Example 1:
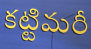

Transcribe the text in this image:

కట్టిమరీ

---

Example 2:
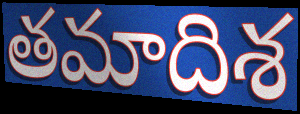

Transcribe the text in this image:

తమాదిశ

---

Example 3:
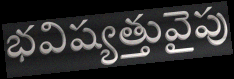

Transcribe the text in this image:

భవిష్యత్తువైపు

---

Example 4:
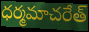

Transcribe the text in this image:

ధర్మమాచరేత్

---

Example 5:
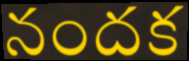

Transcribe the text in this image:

నందక